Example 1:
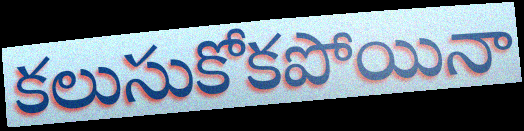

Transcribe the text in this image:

కలుసుకోకపోయినా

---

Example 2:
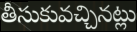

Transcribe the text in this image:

తీసుకువచ్చినట్లు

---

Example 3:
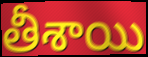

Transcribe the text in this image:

తీశాయి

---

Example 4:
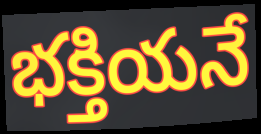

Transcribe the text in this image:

భక్తియనే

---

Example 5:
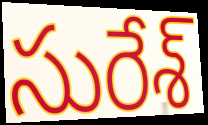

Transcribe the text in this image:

సురేశ్